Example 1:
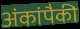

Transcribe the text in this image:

अंकांपैकी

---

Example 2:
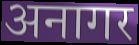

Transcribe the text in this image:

अनागर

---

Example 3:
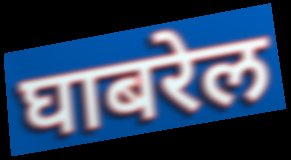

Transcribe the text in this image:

घाबरेल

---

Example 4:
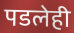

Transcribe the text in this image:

पडलेही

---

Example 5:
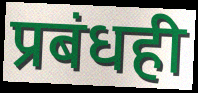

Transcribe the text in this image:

प्रबंधही